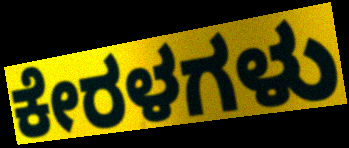
ಕೇರಳಗಳು